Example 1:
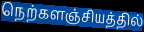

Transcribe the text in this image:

நெற்களஞ்சியத்தில்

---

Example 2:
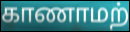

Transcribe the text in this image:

காணாமற்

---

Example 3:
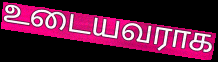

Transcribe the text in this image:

உடையவராக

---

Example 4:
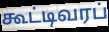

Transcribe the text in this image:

கூட்டிவரப்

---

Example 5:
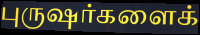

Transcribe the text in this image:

புருஷர்களைக்